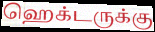
ஹெக்டருக்கு